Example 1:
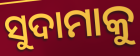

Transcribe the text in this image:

ସୁଦାମାକୁ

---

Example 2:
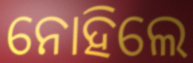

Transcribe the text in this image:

ନୋହିଲେ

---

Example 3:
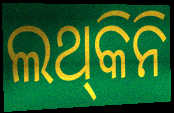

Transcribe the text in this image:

ଲଥ୍‌କିନି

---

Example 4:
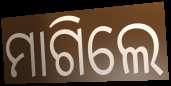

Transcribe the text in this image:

ମାଗିଲେ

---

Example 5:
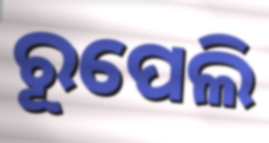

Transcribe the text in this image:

ରୂପେଲି